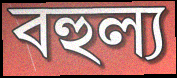
বহুল্য